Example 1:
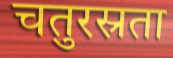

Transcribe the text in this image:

चतुरस्रता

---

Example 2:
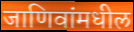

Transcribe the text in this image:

जाणिवांमधील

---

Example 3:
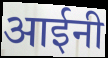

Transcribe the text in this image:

आईनी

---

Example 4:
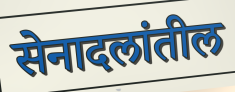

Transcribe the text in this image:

सेनादलांतील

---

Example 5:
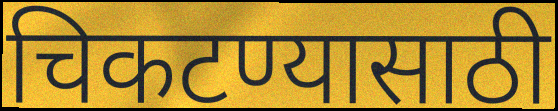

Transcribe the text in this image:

चिकटण्यासाठी